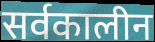
सर्वकालीन